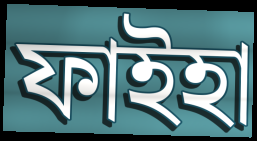
ফাইহা